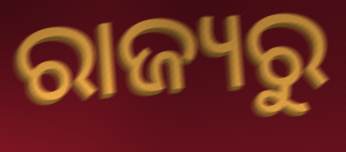
ରାଜ୍ୟରୁ